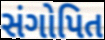
સંગોપિત